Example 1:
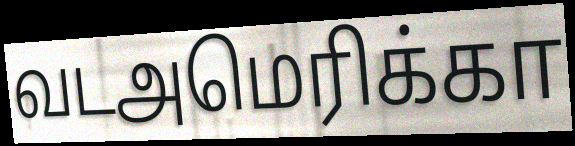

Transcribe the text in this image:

வடஅமெரிக்கா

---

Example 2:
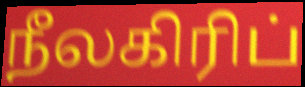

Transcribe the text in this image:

நீலகிரிப்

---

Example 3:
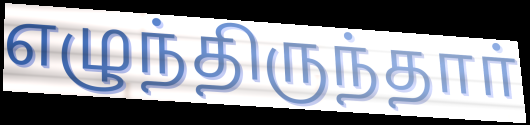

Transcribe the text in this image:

எழுந்திருந்தார்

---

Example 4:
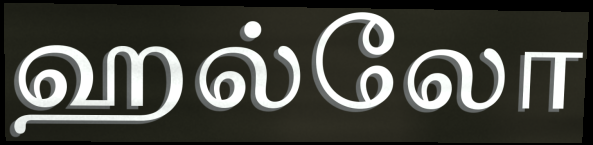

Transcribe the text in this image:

ஹல்லோ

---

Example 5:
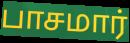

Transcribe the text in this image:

பாசமார்